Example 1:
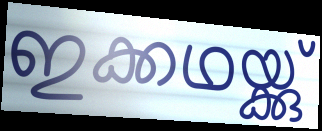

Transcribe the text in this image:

ഇക്കഥയ്ക്കു്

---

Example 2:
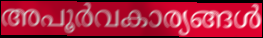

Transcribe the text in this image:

അപൂർവകാര്യങ്ങൾ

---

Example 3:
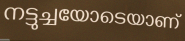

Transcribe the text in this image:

നട്ടുച്ചയോടെയാണ്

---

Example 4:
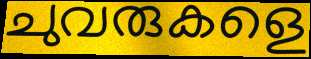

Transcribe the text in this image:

ചുവരുകളെ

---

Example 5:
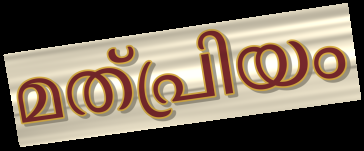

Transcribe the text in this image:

മത്പ്രിയം